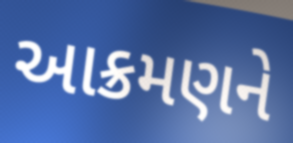
આક્રમણને